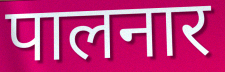
पालनार